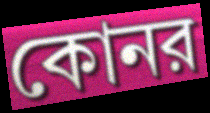
কোনর